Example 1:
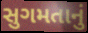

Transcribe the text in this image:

સુગમતાનું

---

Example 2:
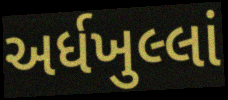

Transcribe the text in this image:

અર્ધખુલ્લાં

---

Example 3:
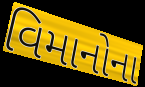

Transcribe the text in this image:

વિમાનોના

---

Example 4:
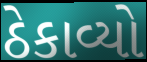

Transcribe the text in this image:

ઠેકાવ્યો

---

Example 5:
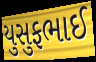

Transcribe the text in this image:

યુસુફભાઈ